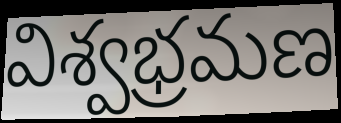
విశ్వభ్రమణ